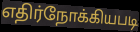
எதிர்நோக்கியபடி